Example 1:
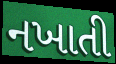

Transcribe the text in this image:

નખાતી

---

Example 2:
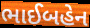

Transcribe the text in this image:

ભાઈબહેન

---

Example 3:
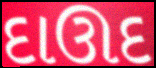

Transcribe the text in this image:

દાઊદ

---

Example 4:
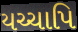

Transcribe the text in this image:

યચ્ચાપિ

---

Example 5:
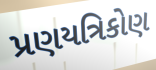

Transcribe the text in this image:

પ્રણયત્રિકોણ